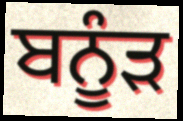
ਬਨੂੰੜ